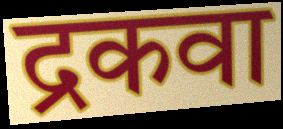
द्रकवा